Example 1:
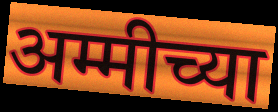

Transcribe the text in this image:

अम्मीच्या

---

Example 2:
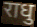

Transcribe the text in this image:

राधु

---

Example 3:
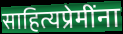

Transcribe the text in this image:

साहित्यप्रेमींना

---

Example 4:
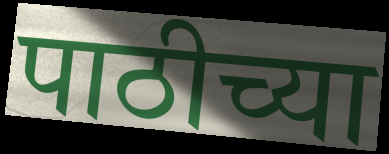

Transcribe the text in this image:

पाठीच्या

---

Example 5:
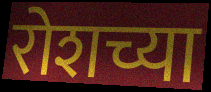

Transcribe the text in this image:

रोशच्या